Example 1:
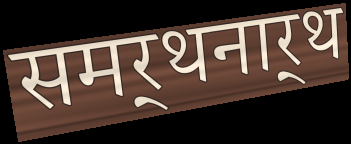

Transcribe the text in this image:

समर्थनार्थ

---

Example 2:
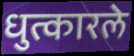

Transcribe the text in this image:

धुत्कारले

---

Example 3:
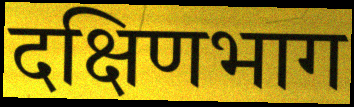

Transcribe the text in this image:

दक्षिणभाग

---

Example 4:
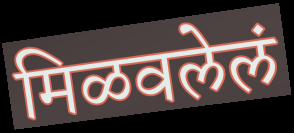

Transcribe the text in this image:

मिळवलेलं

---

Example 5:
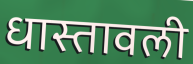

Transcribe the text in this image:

धास्तावली